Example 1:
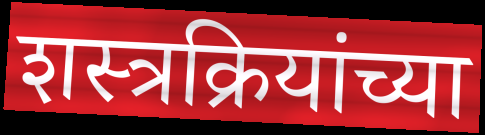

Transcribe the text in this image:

शस्त्रक्रियांच्या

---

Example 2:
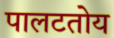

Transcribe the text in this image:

पालटतोय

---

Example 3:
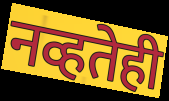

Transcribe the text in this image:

नव्हतेही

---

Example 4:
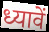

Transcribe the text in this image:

ध्यावें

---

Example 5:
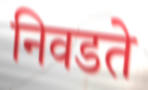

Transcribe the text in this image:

निवडते